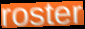
roster